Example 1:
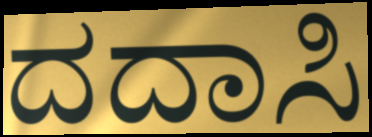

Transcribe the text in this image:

ದದಾಸಿ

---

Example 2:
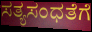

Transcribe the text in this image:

ಸತ್ಯಸಂಧತೆಗೆ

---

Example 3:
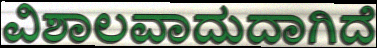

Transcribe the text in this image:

ವಿಶಾಲವಾದುದಾಗಿದೆ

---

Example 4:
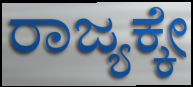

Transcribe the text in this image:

ರಾಜ್ಯಕ್ಕೇ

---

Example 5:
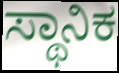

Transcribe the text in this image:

ಸ್ಥಾನಿಕ